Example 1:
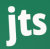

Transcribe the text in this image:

jts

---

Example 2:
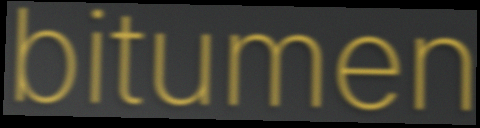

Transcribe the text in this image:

bitumen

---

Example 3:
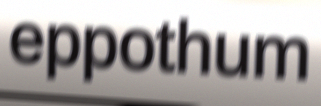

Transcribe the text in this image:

eppothum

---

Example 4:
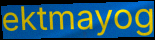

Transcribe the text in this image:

ektmayog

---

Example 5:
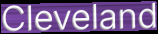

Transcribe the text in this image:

Cleveland